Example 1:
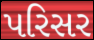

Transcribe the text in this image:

પરિસર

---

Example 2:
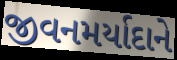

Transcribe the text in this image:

જીવનમર્યાદાને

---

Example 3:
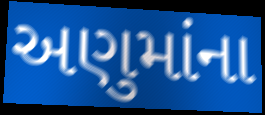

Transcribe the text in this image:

અણુમાંના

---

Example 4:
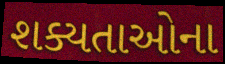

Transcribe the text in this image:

શક્યતાઓના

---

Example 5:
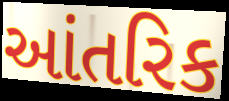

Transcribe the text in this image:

આંતરિક